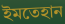
ইমতেহান